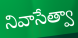
నివాసేత్వా